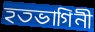
হতভাগিনী